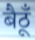
बैठूँ